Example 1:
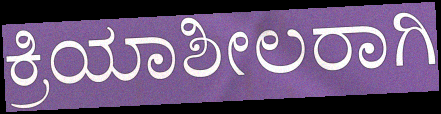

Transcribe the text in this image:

ಕ್ರಿಯಾಶೀಲರಾಗಿ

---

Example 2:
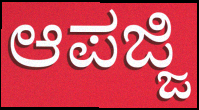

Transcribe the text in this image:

ಆಪಜ್ಜಿ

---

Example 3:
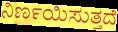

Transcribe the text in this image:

ನಿರ್ಣಯಿಸುತ್ತದೆ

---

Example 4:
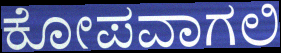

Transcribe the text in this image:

ಕೋಪವಾಗಲಿ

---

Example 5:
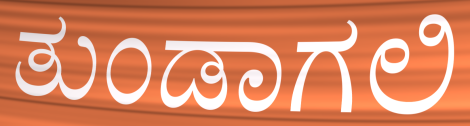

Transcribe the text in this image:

ತುಂಡಾಗಲಿ